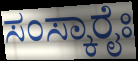
ಸಂಸ್ಕಾರೈಃ